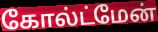
கோல்ட்மேன்